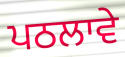
ਪਠਲਾਵੇ